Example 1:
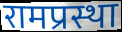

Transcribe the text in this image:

रामप्रस्था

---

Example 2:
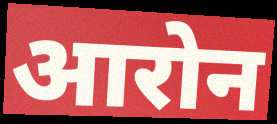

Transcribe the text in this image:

आरोन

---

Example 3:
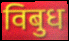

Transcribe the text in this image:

विबुध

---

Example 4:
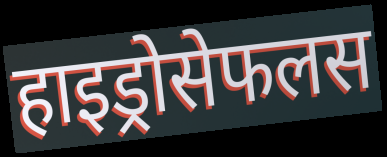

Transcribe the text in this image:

हाइड्रोसेफलस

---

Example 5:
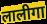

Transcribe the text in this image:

लालीगा